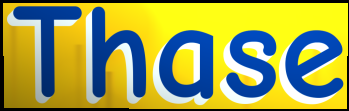
Thase